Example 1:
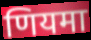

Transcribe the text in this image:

णियमा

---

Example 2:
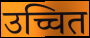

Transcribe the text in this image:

उच्चित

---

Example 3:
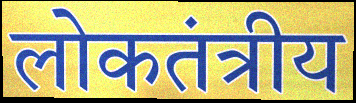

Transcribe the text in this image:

लोकतंत्रीय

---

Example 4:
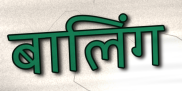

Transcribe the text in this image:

बालिंग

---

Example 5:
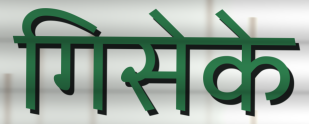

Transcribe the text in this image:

गिसेके